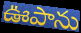
ఊపాను